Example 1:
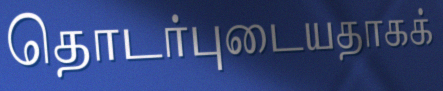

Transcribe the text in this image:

தொடர்புடையதாகக்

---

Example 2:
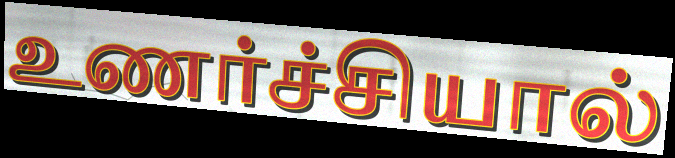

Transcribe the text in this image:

உணர்ச்சியால்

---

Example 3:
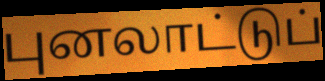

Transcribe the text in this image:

புனலாட்டுப்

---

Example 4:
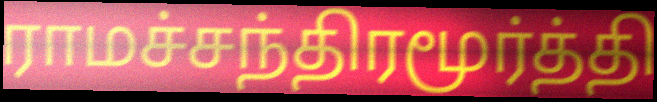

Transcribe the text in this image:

ராமச்சந்திரமூர்த்தி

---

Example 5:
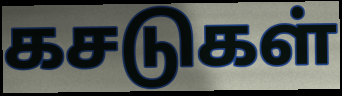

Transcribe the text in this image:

கசடுகள்